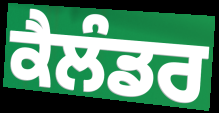
ਕੈਲੰਡਰ